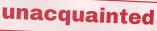
unacquainted